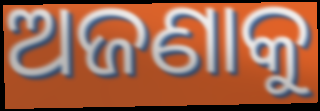
ଅଜଣାକୁ